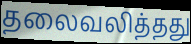
தலைவலித்தது